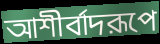
আশীর্বাদরূপে